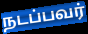
நடப்பவர்